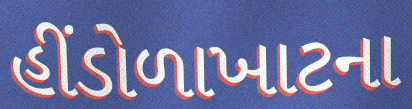
હીંડોળાખાટના